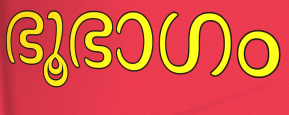
ഭൂഭാഗം